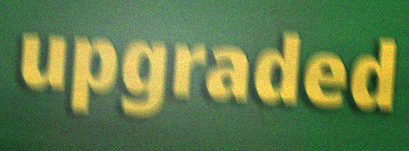
upgraded